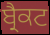
ਬ੍ਰੈਕਟ